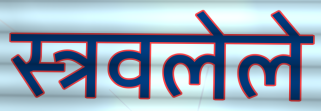
स्त्रवलेले